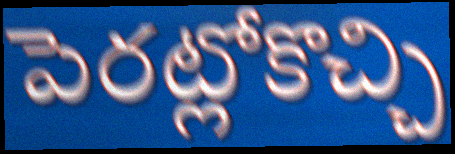
పెరట్లోకొచ్చి